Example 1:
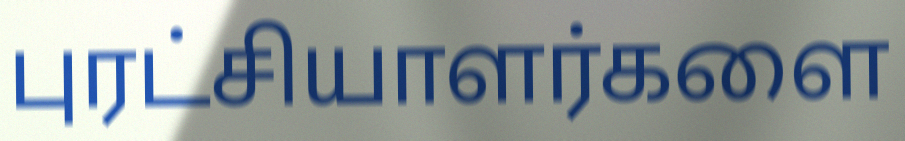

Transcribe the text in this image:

புரட்சியாளர்களை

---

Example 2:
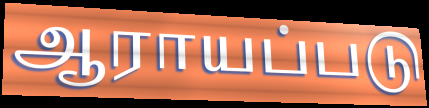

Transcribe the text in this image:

ஆராயப்படு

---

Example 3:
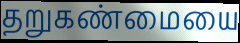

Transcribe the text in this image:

தறுகண்மையை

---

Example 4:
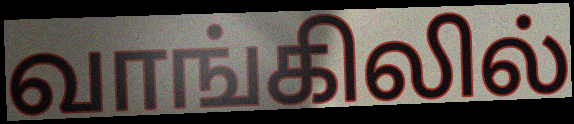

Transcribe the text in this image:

வாங்கிலில்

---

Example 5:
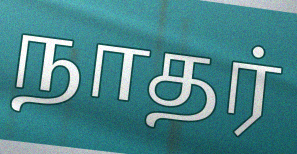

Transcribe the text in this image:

நாதர்